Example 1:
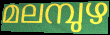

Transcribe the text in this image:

മലമ്പുഴ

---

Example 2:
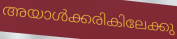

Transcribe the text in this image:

അയാൾക്കരികിലേക്കു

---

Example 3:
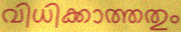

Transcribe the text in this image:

വിധിക്കാത്തതും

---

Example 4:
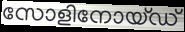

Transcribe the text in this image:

സോളിനോയ്ഡ്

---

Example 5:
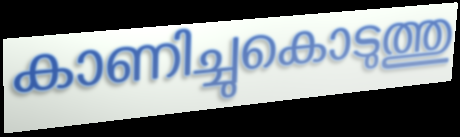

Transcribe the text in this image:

കാണിച്ചുകൊടുത്തു